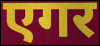
एगर